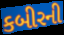
કબીરની